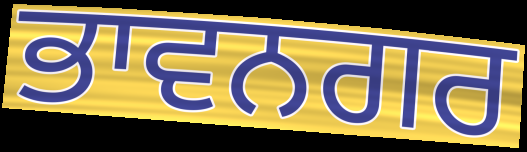
ਭਾਵਨਗਰ